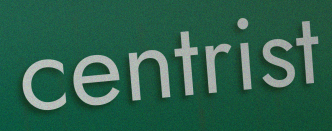
centrist